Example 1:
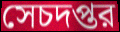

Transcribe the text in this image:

সেচদপ্তর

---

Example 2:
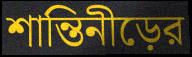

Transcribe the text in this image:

শান্তিনীড়ের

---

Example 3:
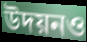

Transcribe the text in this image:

উদয়নও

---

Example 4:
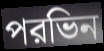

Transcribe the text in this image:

পরভিন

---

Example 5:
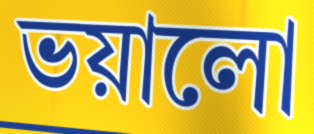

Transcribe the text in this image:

ভয়ালো